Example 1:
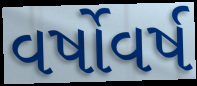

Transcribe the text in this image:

વર્ષોવર્ષ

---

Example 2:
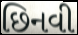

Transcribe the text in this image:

છિનવી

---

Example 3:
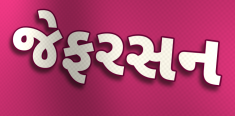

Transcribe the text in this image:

જેફરસન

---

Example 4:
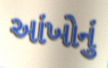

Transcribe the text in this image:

આંખોનું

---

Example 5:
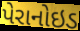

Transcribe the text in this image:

પેરાનોઇડ